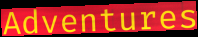
Adventures